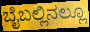
ಬೈಬಲ್ಲಿನಲ್ಲೂ